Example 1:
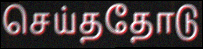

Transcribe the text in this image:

செய்ததோடு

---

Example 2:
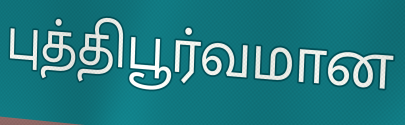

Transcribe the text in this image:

புத்திபூர்வமான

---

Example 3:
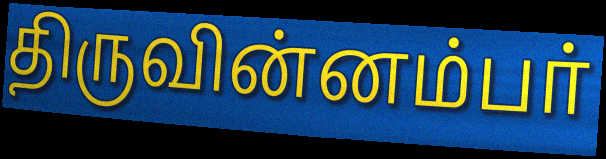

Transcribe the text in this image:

திருவின்னம்பர்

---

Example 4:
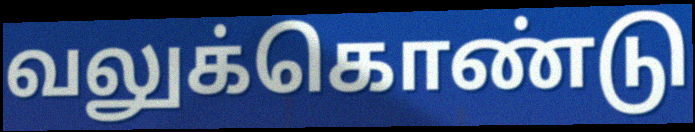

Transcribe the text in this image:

வலுக்கொண்டு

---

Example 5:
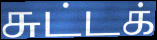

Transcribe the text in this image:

சுட்டக்